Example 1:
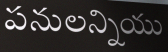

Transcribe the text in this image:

పనులన్నియు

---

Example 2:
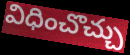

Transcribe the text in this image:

విధించొచ్చు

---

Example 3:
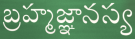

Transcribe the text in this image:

బ్రహ్మజ్ఞానస్య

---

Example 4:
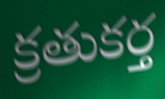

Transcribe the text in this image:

క్రతుకర్త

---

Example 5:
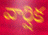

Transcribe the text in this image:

వార్షిక